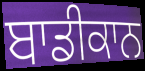
ਬਾਡੀਕਾਨ